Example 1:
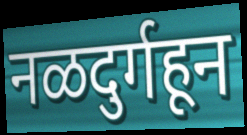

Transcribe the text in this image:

नळदुर्गहून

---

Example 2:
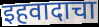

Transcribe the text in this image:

इहवादाचा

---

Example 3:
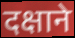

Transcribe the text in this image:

दक्षाने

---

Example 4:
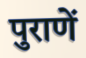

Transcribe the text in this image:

पुराणें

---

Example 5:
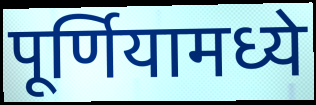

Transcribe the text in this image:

पूर्णियामध्ये